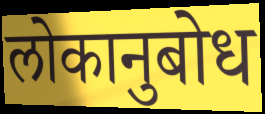
लोकानुबोध